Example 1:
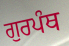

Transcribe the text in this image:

ਗੁਰਪੰਥ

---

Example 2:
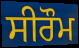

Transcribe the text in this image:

ਸੀਰੌਮ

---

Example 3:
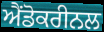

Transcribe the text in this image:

ਐਂਡੋਕਰੀਨਲ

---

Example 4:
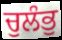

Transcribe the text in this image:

ਚੁਲੰਭੁ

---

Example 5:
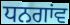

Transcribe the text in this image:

ਧਨਗਾਂਵ